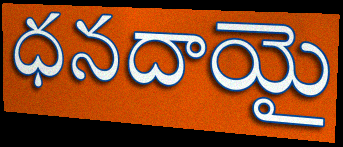
ధనదాయై